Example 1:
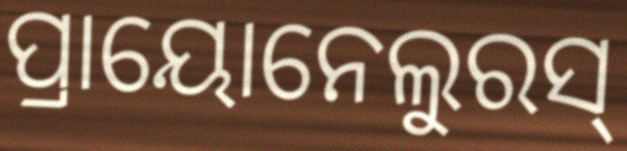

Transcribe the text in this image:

ପ୍ରାୟୋନେଲୁରସ୍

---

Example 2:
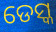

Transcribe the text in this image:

ଡେସ୍କ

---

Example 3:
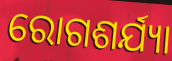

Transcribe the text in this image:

ରୋଗଶର୍ଯ୍ୟା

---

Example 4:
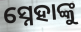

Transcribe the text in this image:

ସ୍ନେହାଙ୍କୁ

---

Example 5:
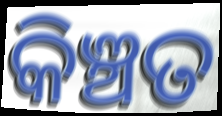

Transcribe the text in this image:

କିଞ୍ଚତ